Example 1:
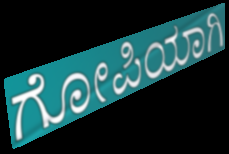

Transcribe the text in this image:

ಗೋಪಿಯಾಗಿ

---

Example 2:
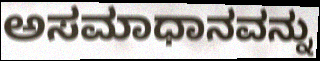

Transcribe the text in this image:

ಅಸಮಾಧಾನವನ್ನು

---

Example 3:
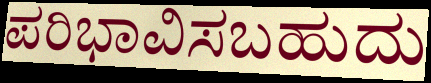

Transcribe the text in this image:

ಪರಿಭಾವಿಸಬಹುದು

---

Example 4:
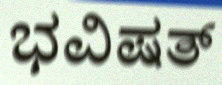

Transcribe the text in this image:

ಭವಿಷತ್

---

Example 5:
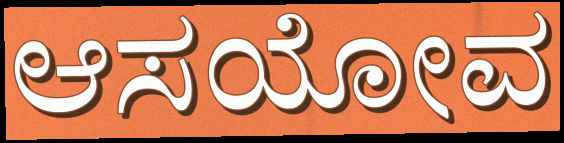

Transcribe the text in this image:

ಆಸಯೋವ